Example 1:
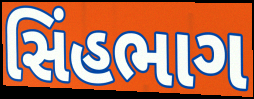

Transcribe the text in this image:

સિંહભાગ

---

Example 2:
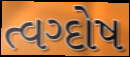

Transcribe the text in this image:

ત્વગ્દોષ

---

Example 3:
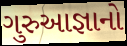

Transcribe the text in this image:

ગુરુઆજ્ઞાનો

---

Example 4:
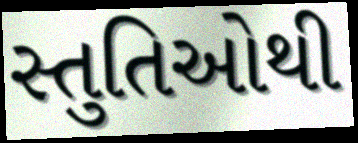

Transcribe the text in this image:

સ્તુતિઓથી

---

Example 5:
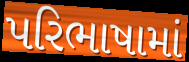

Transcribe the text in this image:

પરિભાષામાં